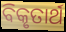
ବିକୃତାର୍ଥ